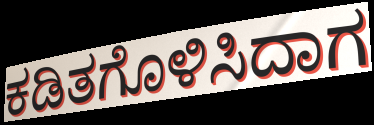
ಕಡಿತಗೊಳಿಸಿದಾಗ